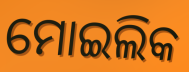
ମୋଇଲିକ